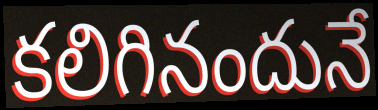
కలిగినందునే